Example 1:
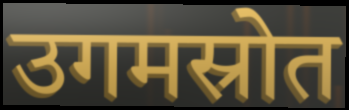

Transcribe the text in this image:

उगमस्रोत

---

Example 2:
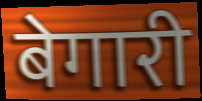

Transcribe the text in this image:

बेगारी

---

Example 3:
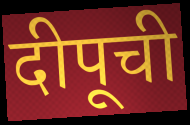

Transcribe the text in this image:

दीपूची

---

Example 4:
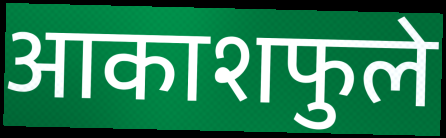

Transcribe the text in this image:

आकाशफुले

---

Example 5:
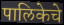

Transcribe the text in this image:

पालिकेचे